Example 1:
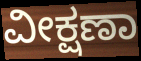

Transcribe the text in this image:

ವೀಕ್ಷಣಾ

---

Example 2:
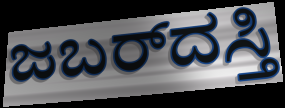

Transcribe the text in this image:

ಜಬರ್‌ದಸ್ತಿ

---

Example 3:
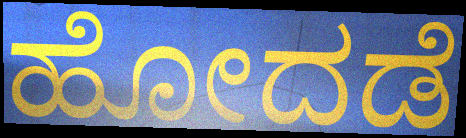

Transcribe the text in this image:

ಹೋದಡೆ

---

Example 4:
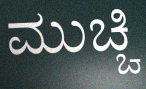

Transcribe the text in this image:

ಮುಚ್ಚಿ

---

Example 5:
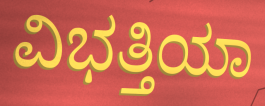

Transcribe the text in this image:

ವಿಭತ್ತಿಯಾ